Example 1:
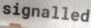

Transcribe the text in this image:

signalled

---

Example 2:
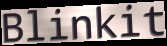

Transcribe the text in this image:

Blinkit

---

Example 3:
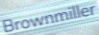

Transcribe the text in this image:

Brownmiller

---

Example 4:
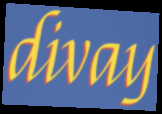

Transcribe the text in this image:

divay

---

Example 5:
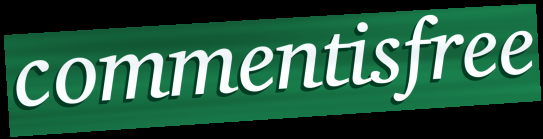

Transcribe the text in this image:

commentisfree